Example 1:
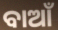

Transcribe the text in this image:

ବାଆଁ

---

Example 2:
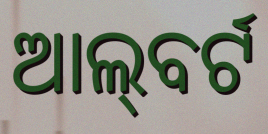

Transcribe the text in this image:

ଆଲ୍‌ବର୍ଟ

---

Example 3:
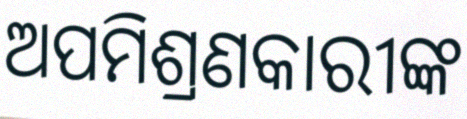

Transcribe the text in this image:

ଅପମିଶ୍ରଣକାରୀଙ୍କ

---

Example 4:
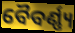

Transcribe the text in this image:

ବୈବର୍ଣ୍ଣ୍ୟ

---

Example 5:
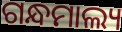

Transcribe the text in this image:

ଗନ୍ଧମାଲ୍ୟ